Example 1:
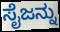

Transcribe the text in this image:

ಸೈಜನ್ನು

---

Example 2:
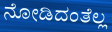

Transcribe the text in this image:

ನೋಡಿದಂತೆಲ್ಲ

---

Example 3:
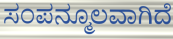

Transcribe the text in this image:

ಸಂಪನ್ಮೂಲವಾಗಿದೆ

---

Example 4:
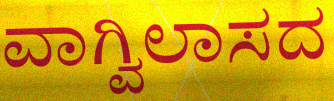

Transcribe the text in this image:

ವಾಗ್ವಿಲಾಸದ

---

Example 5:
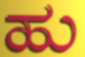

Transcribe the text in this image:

ಹು